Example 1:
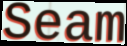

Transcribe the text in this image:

Seam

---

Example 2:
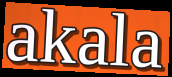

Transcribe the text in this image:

akala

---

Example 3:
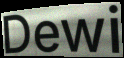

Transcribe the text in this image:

Dewi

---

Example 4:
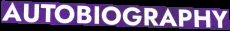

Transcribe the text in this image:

AUTOBIOGRAPHY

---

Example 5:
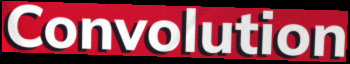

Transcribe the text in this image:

Convolution